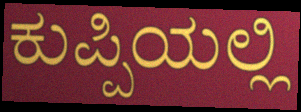
ಕುಪ್ಪಿಯಲ್ಲಿ